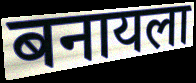
बनायला